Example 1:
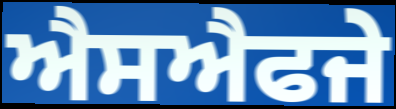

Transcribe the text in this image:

ਐਸਐਫਜੇ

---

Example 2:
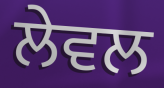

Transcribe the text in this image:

ਲੇਵਲ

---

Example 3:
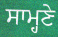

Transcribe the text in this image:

ਸਾਮ੍ਹਣੇ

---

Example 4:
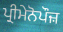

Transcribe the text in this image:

ਪ੍ਰੀਮੇਨੋਪੌਜ਼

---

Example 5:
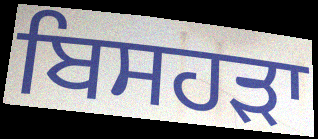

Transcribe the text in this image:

ਬਿਸਹੜਾ